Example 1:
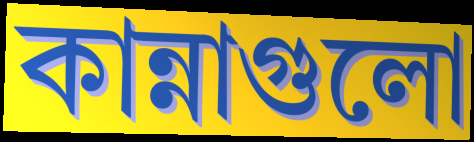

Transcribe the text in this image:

কান্নাগুলো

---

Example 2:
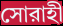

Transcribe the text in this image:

সোরাহী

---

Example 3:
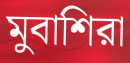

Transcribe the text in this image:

মুবাশিরা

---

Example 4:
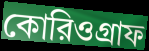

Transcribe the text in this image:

কোরিওগ্রাফ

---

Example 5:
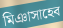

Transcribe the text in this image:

মিঞাসাহেব